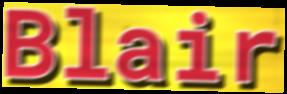
Blair